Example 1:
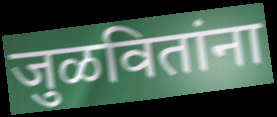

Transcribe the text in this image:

जुळवितांना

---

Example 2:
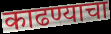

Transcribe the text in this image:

काढण्याचा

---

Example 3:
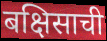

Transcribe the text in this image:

बक्षिसाची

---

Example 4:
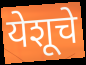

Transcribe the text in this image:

येशूचे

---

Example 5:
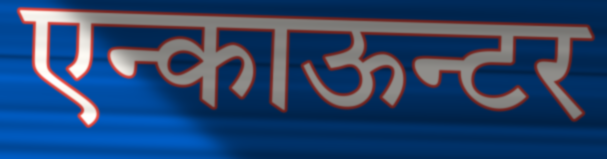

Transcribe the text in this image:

एन्काऊन्टर